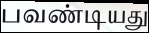
பவண்டியது